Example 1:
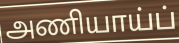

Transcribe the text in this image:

அணியாய்ப்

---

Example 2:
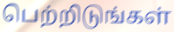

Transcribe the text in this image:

பெற்றிடுங்கள்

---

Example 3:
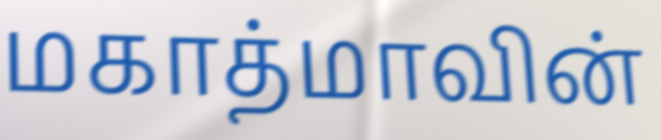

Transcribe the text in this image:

மகாத்மாவின்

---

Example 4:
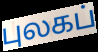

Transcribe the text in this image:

புலகப்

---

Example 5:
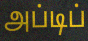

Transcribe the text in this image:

அப்டிப்